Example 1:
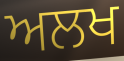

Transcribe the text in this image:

ਅਲਖ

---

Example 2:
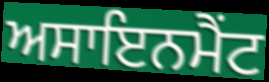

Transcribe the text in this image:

ਅਸਾਇਨਮੈਂਟ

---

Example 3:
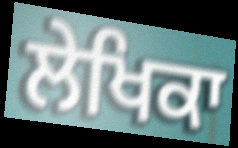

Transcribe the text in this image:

ਲੇਖਿਕਾ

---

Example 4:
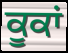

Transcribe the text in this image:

ਕੂਕਾਂ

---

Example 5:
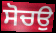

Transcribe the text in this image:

ਸੋਚਉ